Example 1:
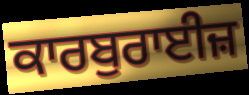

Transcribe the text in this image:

ਕਾਰਬੁਰਾਈਜ਼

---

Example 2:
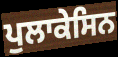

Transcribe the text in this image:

ਪੁਲਾਕੇਸਿਨ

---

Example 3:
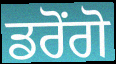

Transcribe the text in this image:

ਡਰੋਂਗੋ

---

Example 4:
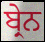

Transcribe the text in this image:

ਬ੍ਰੇਨ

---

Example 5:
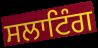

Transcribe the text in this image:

ਸਲਾਟਿੰਗ